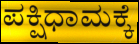
ಪಕ್ಷಿಧಾಮಕ್ಕೆ